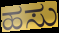
ಹಸು